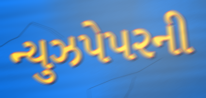
ન્યુઝપેપરની